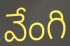
వేంగి